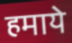
हमाये